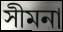
সীমনা